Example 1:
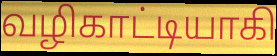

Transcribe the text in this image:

வழிகாட்டியாகி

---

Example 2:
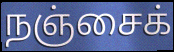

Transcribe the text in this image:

நஞ்சைக்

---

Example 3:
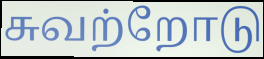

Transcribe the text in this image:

சுவற்றோடு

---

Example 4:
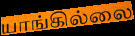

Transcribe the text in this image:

யாங்கில்லை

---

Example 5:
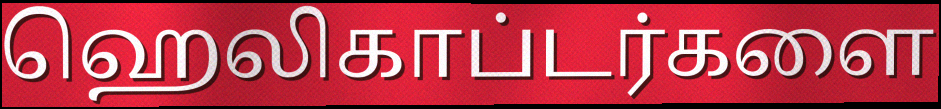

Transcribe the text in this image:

ஹெலிகாப்டர்களை